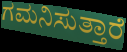
ಗಮನಿಸುತ್ತಾರೆ